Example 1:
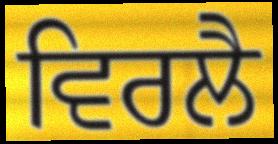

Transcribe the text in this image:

ਵਿਰਲੈ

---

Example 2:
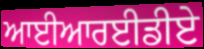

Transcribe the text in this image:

ਆਈਆਰਈਡੀਏ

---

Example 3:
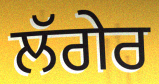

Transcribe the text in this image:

ਲੱਗੇਰ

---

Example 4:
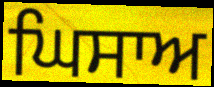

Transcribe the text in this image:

ਘਿਸਾਅ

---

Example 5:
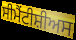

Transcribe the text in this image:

ਸੀਮੈਂਟੀਸ਼ੀਅਸ